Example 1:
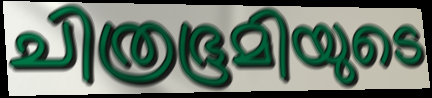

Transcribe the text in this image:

ചിത്രഭൂമിയുടെ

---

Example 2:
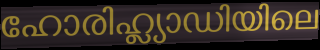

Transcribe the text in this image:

ഹോരിഹ്ല്യാഡിയിലെ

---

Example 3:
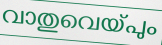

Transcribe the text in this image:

വാതുവെയ്പും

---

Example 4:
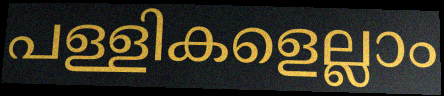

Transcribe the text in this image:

പള്ളികളെല്ലാം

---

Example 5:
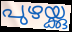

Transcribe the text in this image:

പുഴയ്ക്കു